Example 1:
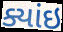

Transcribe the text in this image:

ક્યાંઇ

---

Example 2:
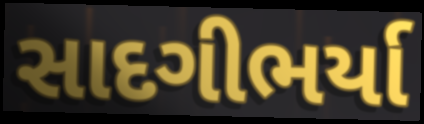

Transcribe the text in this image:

સાદગીભર્યા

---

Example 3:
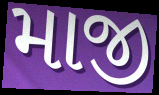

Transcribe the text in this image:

માજી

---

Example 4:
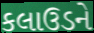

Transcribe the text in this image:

કલાઉડને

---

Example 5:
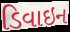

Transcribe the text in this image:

ડિવાઇન